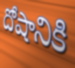
దోషానికి